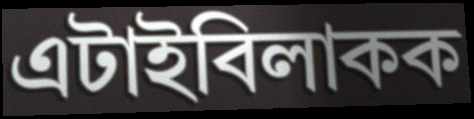
এটাইবিলাকক